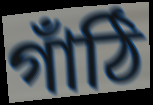
গাঁঠি